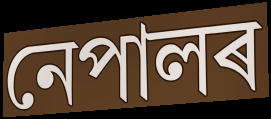
নেপালৰ